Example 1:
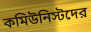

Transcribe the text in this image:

কমিউনিস্টদের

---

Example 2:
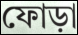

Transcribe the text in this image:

ফোড়া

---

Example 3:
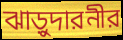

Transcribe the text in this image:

ঝাড়ুদারনীর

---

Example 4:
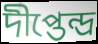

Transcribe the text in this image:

দীপ্তেন্দ্র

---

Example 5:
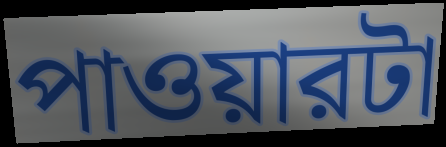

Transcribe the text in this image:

পাওয়ারটা